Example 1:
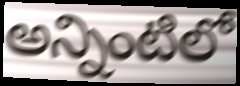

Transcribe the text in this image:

అన్నింటిలో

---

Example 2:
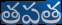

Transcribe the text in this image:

తపత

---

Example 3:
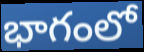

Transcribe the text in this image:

భాగంలో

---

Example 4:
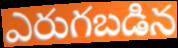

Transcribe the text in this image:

ఎరుగబడిన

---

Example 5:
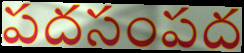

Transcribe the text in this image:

పదసంపద